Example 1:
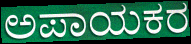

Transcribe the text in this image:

ಅಪಾಯಕರ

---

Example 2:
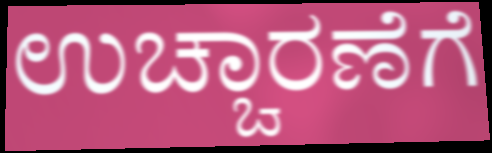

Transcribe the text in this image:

ಉಚ್ಚಾರಣೆಗೆ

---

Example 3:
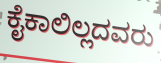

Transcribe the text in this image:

ಕೈಕಾಲಿಲ್ಲದವರು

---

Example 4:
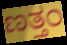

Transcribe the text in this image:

ಣತ್ತಂ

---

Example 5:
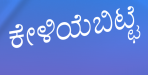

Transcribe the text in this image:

ಕೇಳಿಯೆಬಿಟ್ಟೆ